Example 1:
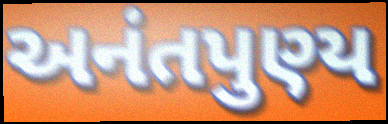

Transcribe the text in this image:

અનંતપુણ્ય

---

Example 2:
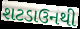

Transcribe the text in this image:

શટડાઉનથી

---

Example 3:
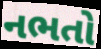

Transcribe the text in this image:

નભતો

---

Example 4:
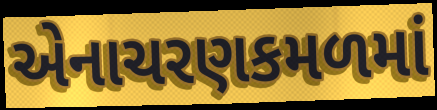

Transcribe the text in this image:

એનાચરણકમળમાં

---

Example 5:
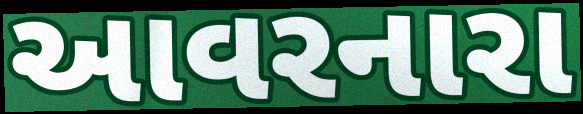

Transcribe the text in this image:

આવરનારા